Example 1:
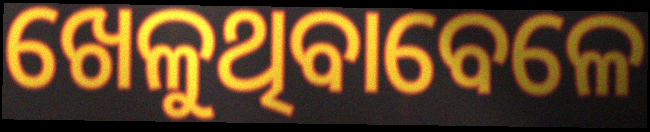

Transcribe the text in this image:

ଖେଳୁଥିବାବେଳେ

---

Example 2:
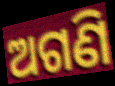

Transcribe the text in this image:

ଅଗଣି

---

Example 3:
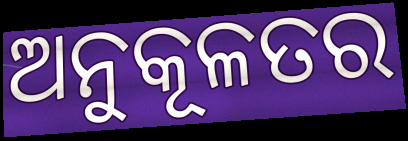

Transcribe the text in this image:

ଅନୁକୂଳତର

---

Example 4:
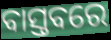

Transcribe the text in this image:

ବାସ୍ତବରେ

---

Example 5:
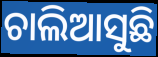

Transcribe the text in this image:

ଚାଲିଆସୁଛି